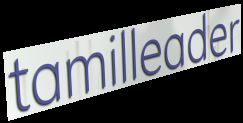
tamilleader